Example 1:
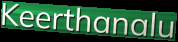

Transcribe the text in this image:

Keerthanalu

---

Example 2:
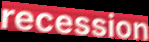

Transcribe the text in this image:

recession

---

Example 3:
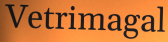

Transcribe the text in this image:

Vetrimagal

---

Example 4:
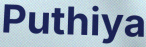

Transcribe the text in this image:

Puthiya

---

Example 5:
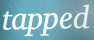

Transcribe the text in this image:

tapped